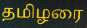
தமிழரை